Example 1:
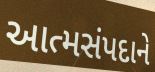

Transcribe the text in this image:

આત્મસંપદાને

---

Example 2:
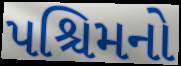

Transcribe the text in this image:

પશ્ચિમનો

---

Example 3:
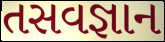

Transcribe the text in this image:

તસવજ્ઞાન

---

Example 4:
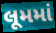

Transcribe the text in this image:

લૂમમાં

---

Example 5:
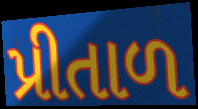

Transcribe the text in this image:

પ્રીતાળ